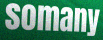
somany